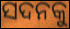
ସଦନକୁ